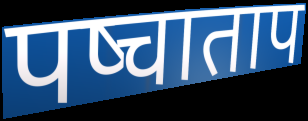
पष्चाताप